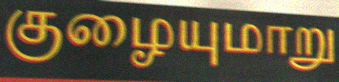
குழையுமாறு